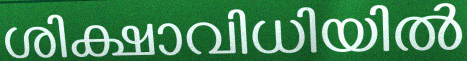
ശിക്ഷാവിധിയിൽ